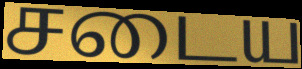
சடைய